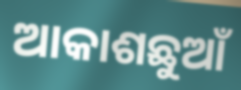
ଆକାଶଛୁଆଁ